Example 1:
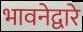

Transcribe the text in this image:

भावनेद्वारे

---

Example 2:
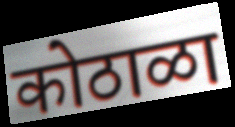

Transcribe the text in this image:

कोठाळा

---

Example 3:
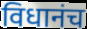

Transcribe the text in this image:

विधानंच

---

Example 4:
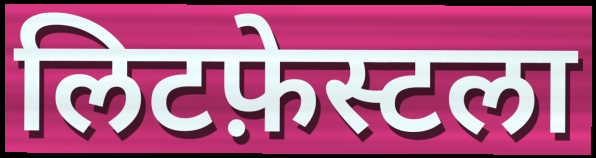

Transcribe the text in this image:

लिटफ़ेस्टला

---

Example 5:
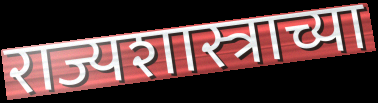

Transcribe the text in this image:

राज्यशास्त्राच्या